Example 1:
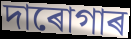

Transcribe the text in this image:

দাৰোগাৰ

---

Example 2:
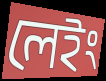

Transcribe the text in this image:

লেইং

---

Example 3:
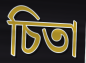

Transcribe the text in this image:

চিতা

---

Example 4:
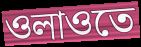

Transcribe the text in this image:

ওলাওতে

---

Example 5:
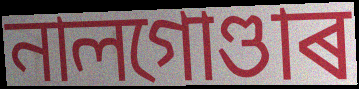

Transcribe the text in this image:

নালগোণ্ডাৰ